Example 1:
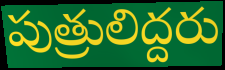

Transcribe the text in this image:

పుత్రులిద్దరు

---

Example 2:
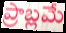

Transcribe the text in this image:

ప్రాబ్లమే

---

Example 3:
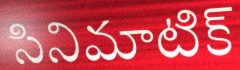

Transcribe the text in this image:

సినిమాటిక్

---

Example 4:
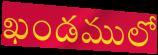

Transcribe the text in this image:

ఖండములో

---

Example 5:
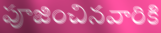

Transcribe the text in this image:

పూజించినవారికి